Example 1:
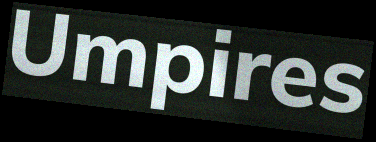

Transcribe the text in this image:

Umpires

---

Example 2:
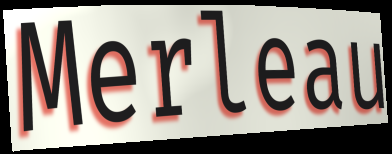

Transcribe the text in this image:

Merleau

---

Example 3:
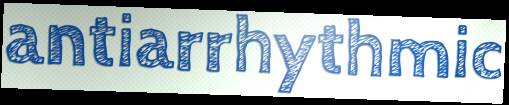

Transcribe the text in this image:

antiarrhythmic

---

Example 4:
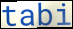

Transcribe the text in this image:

tabi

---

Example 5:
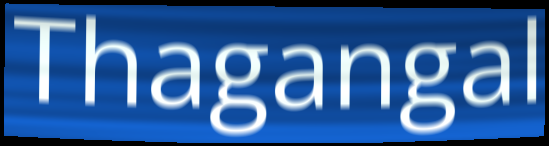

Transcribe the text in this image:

Thagangal